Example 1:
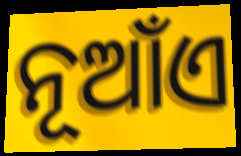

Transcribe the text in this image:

ନୂଆଁଏ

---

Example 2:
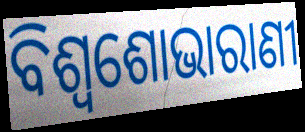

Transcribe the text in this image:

ବିଶ୍ୱଶୋଭାରାଣୀ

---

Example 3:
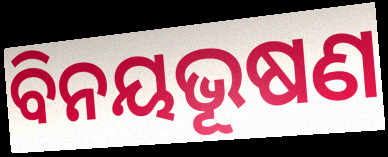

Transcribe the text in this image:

ବିନୟଭୂଷଣ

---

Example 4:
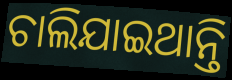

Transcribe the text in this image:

ଚାଲିଯାଇଥାନ୍ତି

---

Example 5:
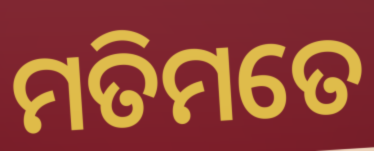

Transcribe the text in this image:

ମତିମତେ